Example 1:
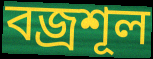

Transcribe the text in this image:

বজ্রশূল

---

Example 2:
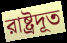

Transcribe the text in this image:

রাষ্ট্রদূত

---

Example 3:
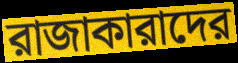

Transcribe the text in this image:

রাজাকারাদের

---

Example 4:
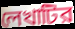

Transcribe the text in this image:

লেখাটির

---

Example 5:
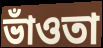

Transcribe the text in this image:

ভাঁওতা